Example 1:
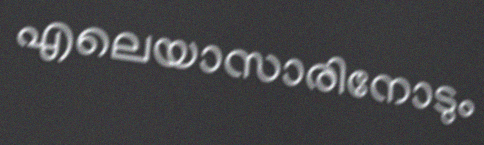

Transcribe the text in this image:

എലെയാസാരിനോടും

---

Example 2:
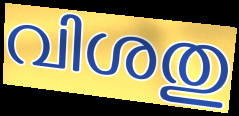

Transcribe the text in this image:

വിശതു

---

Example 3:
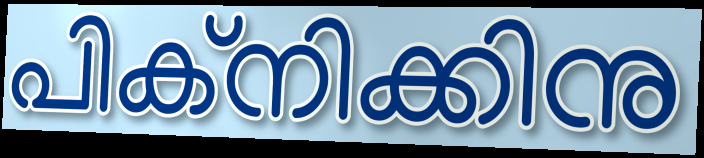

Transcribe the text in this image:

പിക്നിക്കിനു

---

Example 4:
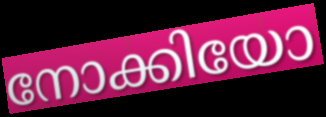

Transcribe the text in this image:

നോക്കിയോ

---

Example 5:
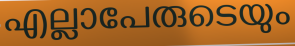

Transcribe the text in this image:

എല്ലാപേരുടെയും